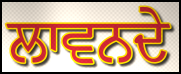
ਲਾਵਨਦੇ